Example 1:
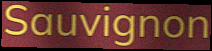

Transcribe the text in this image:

Sauvignon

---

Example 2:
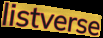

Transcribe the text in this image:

listverse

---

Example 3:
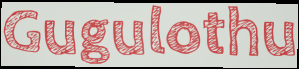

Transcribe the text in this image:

Gugulothu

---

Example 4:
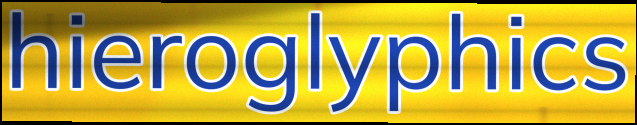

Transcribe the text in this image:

hieroglyphics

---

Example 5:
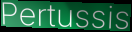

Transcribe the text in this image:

Pertussis